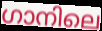
ഗാനിലെ